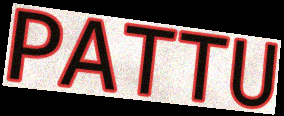
PATTU